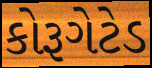
કોરૂગેટેડ